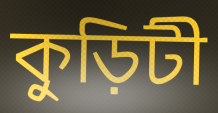
কুড়িটী